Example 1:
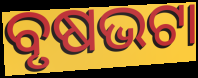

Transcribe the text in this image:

ବୃଷଭଟା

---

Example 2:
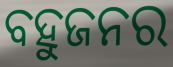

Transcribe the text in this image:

ବହୁଜନର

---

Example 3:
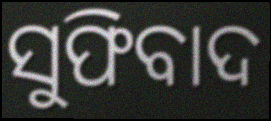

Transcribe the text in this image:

ସୁଫିବାଦ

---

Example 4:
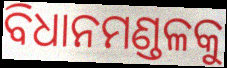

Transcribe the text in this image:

ବିଧାନମଣ୍ଡଳକୁ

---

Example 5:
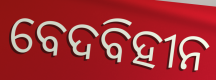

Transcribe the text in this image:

ବେଦବିହୀନ